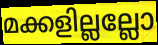
മക്കളില്ലല്ലോ